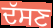
ਦੱਸਣ